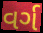
વર્ગ